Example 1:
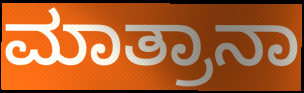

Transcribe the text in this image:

ಮಾತ್ರಾನಾ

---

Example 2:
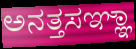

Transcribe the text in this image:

ಅನತ್ತಸಞ್ಞಾ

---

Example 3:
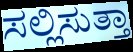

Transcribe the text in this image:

ಸಲ್ಲಿಸುತ್ತಾ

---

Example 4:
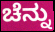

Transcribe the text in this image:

ಚೆನ್ನು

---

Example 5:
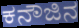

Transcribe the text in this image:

ಕನೌಜಿನ